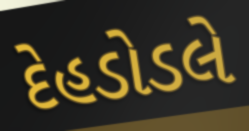
દેહડોડલે